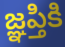
జ్ఞప్తికి